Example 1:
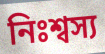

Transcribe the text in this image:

নিঃশ্বস্য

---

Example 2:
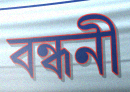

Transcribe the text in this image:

বন্ধনী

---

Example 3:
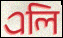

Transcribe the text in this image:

এলি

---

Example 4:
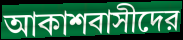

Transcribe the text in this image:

আকাশবাসীদের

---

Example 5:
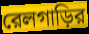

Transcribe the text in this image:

রেলগাড়ির